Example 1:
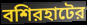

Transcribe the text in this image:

বশিরহাটের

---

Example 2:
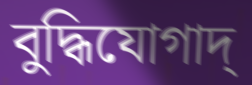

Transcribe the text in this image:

বুদ্ধিযোগাদ্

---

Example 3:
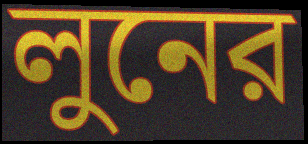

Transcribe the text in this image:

লুনের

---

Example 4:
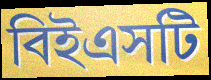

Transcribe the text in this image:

বিইএসটি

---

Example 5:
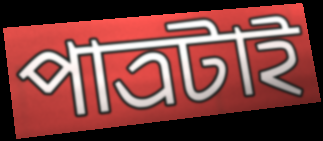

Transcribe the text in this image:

পাত্রটাই